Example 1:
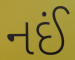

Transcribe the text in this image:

નઈં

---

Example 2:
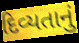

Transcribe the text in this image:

દિવ્યતાનું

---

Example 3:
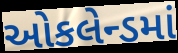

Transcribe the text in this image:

ઓકલેન્ડમાં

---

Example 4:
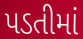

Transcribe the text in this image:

પડતીમાં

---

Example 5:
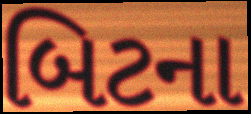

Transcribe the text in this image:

બિટના